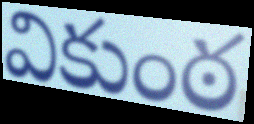
వికుంఠ